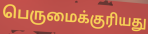
பெருமைக்குரியது